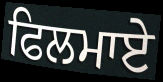
ਫਿਲਮਾਏ